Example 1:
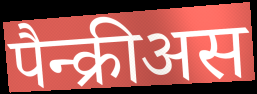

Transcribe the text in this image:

पैन्क्रीअस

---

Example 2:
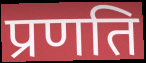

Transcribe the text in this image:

प्रणति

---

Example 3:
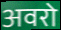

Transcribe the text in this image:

अवरो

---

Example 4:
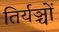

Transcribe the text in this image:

तिर्यञ्चों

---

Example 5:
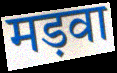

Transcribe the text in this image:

मड़वा